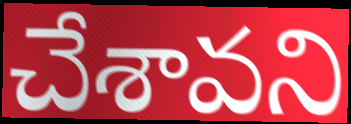
చేశావని